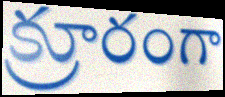
క్రూరంగా